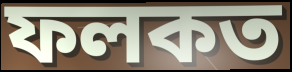
ফলকত